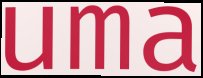
uma